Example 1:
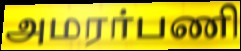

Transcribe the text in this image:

அமரர்பணி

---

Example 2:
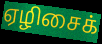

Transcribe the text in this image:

ஏழிசைக்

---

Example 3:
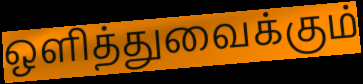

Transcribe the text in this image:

ஒளித்துவைக்கும்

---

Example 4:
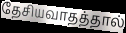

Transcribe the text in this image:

தேசியவாதத்தால்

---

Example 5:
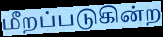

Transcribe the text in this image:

மீறப்படுகின்ற